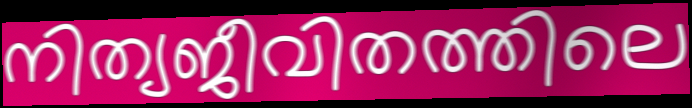
നിത്യജീവിതത്തിലെ